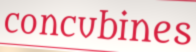
concubines